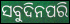
ସବୁଦିନପରି